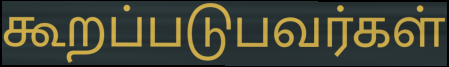
கூறப்படுபவர்கள்